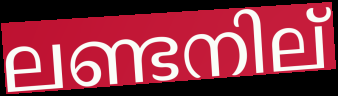
ലണ്ടനില്